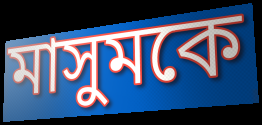
মাসুমকে